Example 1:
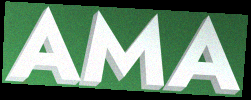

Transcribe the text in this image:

AMA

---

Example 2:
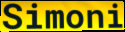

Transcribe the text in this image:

Simoni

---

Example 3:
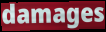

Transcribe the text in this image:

damages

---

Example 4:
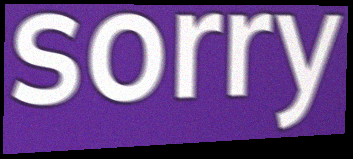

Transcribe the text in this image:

sorry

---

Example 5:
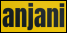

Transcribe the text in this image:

anjani